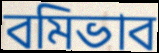
বমিভাব